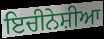
ਇਚੀਨੇਸ਼ੀਆ